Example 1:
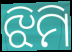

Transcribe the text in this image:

ଝିମି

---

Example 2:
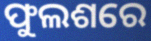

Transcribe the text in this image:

ଫୁଲଶରେ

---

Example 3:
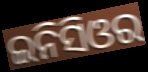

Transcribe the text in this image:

ଇନିସିଓର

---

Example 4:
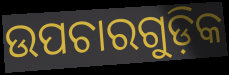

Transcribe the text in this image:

ଉପଚାରଗୁଡ଼ିକ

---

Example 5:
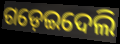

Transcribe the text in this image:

ଗଡ଼େଇଦେଲି